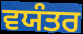
ਵਯੰਤਰ